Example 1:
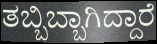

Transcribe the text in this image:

ತಬ್ಬಿಬ್ಬಾಗಿದ್ದಾರೆ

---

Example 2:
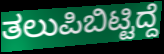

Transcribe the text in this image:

ತಲುಪಿಬಿಟ್ಟಿದ್ದೆ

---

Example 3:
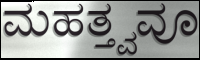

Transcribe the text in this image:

ಮಹತ್ತ್ವವೂ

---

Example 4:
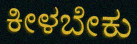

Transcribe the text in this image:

ಕೀಳಬೇಕು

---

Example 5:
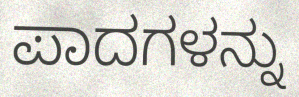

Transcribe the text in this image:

ಪಾದಗಳನ್ನು